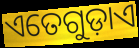
ଏତେଗୁଡ଼ାଏ